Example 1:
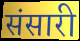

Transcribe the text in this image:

संसारी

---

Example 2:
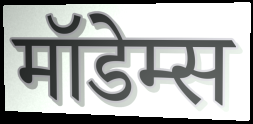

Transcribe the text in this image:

मॉडेम्स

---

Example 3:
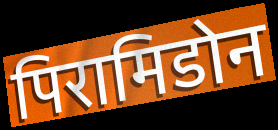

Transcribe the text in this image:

पिरामिडोन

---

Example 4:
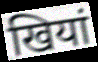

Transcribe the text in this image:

खियां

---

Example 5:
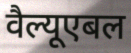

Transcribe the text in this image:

वैल्यूएबल